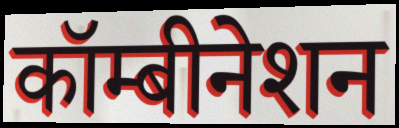
कॉम्बीनेशन